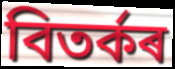
বিতৰ্কৰ